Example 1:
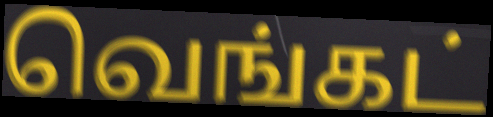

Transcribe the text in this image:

வெங்கட்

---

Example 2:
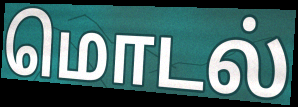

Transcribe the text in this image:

மொடல்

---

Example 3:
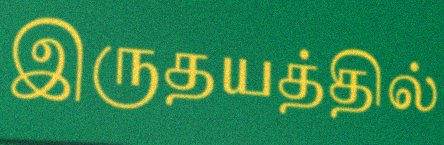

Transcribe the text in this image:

இருதயத்தில்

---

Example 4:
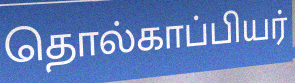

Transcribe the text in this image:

தொல்காப்பியர்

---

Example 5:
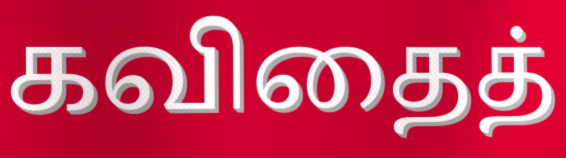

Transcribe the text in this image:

கவிதைத்